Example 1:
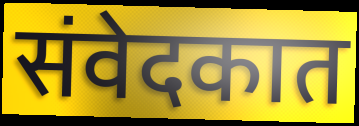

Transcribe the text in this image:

संवेदकात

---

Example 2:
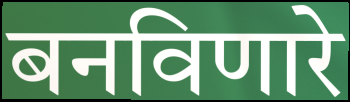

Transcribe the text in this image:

बनविणारे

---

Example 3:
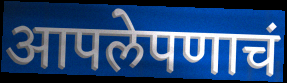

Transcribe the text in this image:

आपलेपणाचं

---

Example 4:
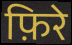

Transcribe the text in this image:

फ़िरे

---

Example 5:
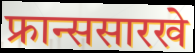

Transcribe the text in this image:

फ्रान्ससारखे